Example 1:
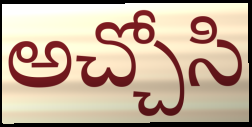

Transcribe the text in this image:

అచ్చోసి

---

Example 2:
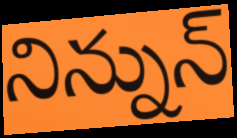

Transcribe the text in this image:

నిన్నున్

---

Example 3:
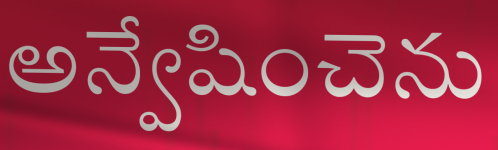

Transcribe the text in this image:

అన్వేషించెను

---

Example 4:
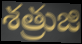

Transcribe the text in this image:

శత్రుజి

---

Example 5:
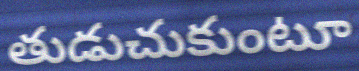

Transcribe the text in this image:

తుడుచుకుంటూ